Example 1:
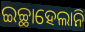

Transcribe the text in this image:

ଇଚ୍ଛାହେଲାନି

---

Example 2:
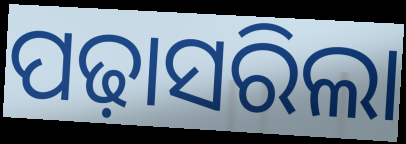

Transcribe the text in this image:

ପଢ଼ାସରିଲା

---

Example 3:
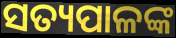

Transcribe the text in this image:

ସତ୍ୟପାଳଙ୍କ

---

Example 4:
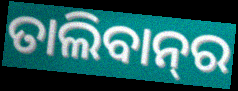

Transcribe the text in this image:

ତାଲିବାନ୍‌ର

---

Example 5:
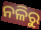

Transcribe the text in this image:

ନଳିରୁ